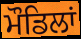
ਮੌਡਿਲਾਂ